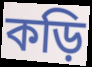
কড়ি